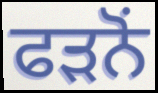
ਫੜਨੋਂ